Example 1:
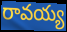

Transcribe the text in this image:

రావయ్య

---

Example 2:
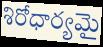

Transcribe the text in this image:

శిరోధార్యమై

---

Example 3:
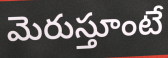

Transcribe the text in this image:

మెరుస్తూంటే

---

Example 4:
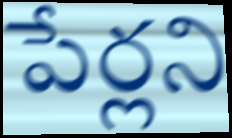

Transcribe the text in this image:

పేర్లని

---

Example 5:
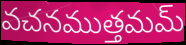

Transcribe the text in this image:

వచనముత్తమమ్